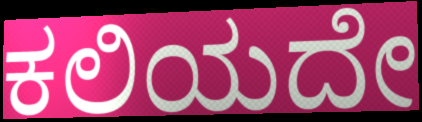
ಕಲಿಯದೇ